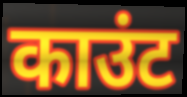
काउंट